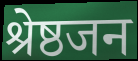
श्रेष्ठजन